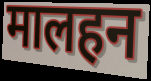
मालहन